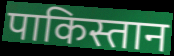
पाकिस्तान